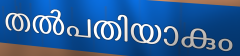
തൽപതിയാകും